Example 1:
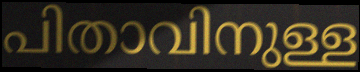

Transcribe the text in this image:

പിതാവിനുള്ള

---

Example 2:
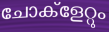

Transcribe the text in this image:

ചോക്ളേറ്റും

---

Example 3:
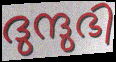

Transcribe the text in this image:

ദുന്ദുഭി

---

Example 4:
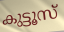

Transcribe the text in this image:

കുട്ടൂസ്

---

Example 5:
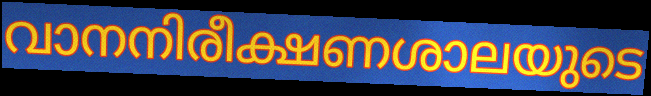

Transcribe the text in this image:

വാനനിരീക്ഷണശാലയുടെ